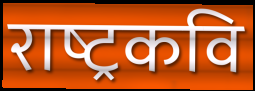
राष्ट्रकवि